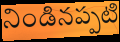
నిండినప్పటి